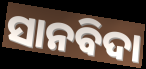
ସାନବିଦା